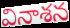
వినాశన